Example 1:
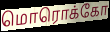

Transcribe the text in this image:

மொரொக்கோ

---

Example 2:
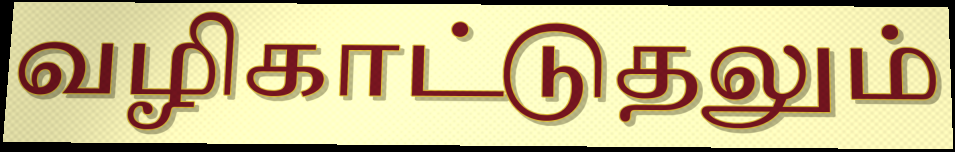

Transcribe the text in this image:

வழிகாட்டுதலும்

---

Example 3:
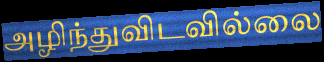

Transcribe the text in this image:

அழிந்துவிடவில்லை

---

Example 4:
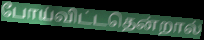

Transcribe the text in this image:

போய்விட்டதென்றால்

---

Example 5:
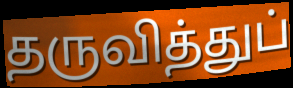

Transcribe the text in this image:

தருவித்துப்